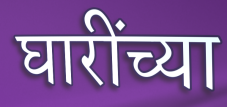
घारींच्या